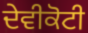
ਦੇਵੀਕੋਟੀ